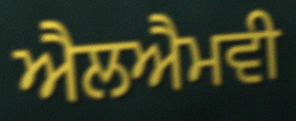
ਐਲਐਮਵੀ